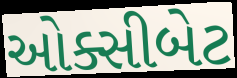
ઓક્સીબેટ